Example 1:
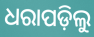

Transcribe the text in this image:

ଧରାପଡ଼ିଲୁ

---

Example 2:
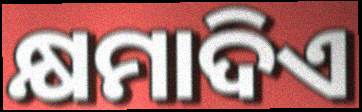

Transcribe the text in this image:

କ୍ଷମାଦିଏ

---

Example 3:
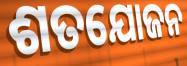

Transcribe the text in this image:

ଶତଯୋଜନ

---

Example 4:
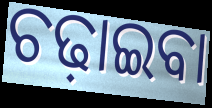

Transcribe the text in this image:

ଚଢ଼ାଇବା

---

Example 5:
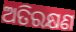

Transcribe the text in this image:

ଅତିରକ୍ଷଣ